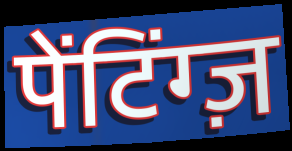
पेंटिंग्ज़